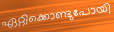
ഏറ്റിക്കൊണ്ടുപോയി